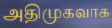
அதிமுகவாக